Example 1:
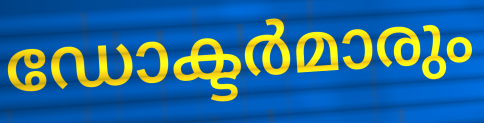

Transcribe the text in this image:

ഡോക്ടർമാരും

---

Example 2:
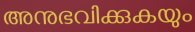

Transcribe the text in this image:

അനുഭവിക്കുകയും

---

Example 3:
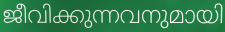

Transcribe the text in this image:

ജീവിക്കുന്നവനുമായി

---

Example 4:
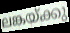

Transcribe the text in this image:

ലങ്കയ്ക്കു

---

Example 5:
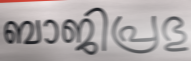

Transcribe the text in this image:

ബാജിപ്രഭു